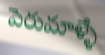
పెరుమాళ్ళే